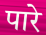
पारे